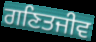
ਗਣਿਤਜੀਵ